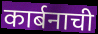
कार्बनाची